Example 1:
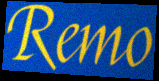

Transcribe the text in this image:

Remo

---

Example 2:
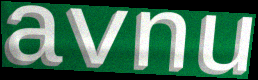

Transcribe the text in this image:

avnu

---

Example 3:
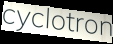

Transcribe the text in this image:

cyclotron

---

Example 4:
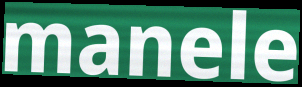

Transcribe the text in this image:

manele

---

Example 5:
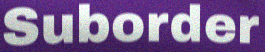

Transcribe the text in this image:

Suborder